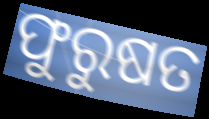
ଫୁରୁଷତ